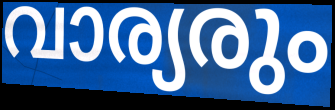
വാര്യരും